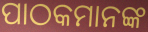
ପାଠକମାନଙ୍କ